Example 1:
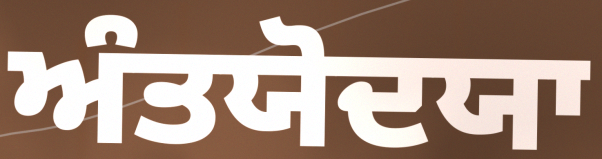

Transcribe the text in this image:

ਅੰਤਯੋਦਯਾ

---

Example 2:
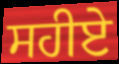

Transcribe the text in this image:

ਸਹੀਏ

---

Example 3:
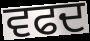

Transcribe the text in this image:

ਵਫਦ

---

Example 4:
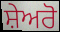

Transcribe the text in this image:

ਸ਼ੇਅਰੋ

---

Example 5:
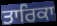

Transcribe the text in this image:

ਤਾਰਿਕਾ